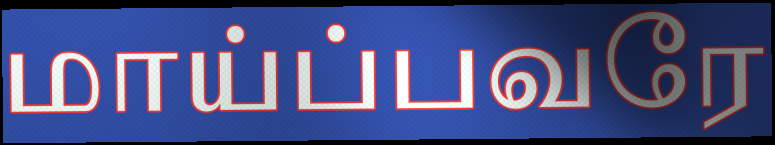
மாய்ப்பவரே